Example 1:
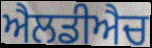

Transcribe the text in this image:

ਐਲਡੀਐਚ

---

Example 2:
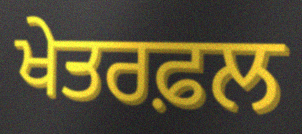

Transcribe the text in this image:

ਖੇਤਰਫ਼ਲ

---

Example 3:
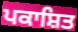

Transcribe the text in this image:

ਪਕਾਸ਼ਿਤ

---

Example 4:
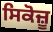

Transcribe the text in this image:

ਸਿਕੋਜ਼ੂ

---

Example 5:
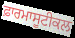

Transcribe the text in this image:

ਫ਼ਾਰਮਾਸੂਟੀਕਲ